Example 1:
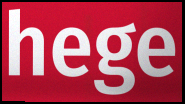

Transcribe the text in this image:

hege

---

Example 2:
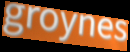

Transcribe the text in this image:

groynes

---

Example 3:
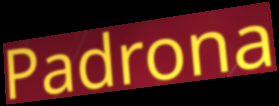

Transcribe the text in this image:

Padrona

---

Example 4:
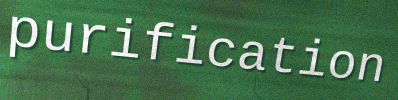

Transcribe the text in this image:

purification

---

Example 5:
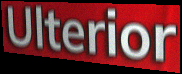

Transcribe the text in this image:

Ulterior